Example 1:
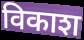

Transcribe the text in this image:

विकाश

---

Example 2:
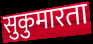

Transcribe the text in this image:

सुकुमारता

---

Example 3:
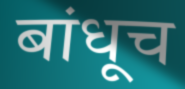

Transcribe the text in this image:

बांधूच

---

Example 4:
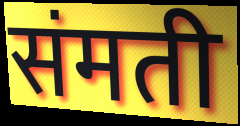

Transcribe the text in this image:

संमती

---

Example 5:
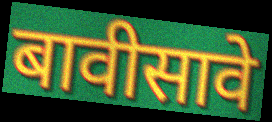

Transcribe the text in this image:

बावीसावे